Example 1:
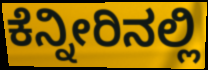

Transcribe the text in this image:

ಕೆನ್ನೀರಿನಲ್ಲಿ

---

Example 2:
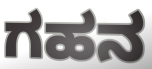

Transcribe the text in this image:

ಗಹನ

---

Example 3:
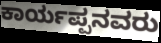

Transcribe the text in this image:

ಕಾರ್ಯಪ್ಪನವರು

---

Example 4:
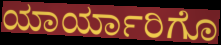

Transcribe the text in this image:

ಯಾರ್ಯಾರಿಗೊ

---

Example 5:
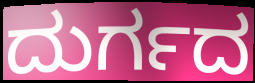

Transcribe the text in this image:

ದುರ್ಗದ